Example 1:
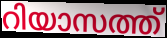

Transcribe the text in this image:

റിയാസത്ത്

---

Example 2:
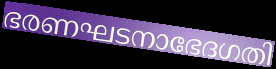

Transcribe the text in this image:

ഭരണഘടനാഭേദഗതി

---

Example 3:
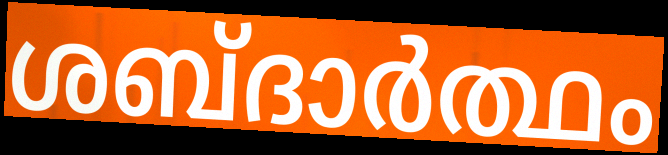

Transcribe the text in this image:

ശബ്ദാർത്ഥം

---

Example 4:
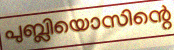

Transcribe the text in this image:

പുബ്ലിയൊസിന്റെ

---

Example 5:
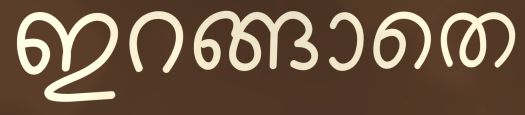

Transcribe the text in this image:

ഇറങ്ങാതെ